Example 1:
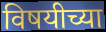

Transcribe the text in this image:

विषयीच्या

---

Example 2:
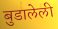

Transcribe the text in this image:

बुडालेली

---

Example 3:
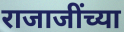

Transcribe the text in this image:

राजाजींच्या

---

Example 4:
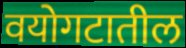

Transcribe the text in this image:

वयोगटातील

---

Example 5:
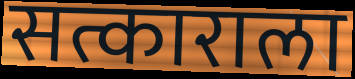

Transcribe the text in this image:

सत्काराला